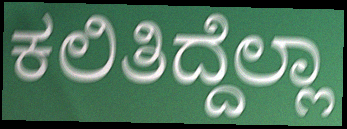
ಕಲಿತಿದ್ದೆಲ್ಲಾ